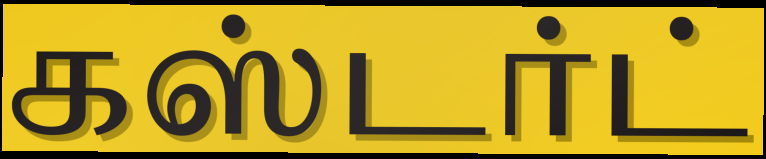
கஸ்டர்ட்